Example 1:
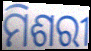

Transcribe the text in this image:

ମିଶରୀ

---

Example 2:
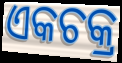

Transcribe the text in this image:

ଏକଚକ୍ର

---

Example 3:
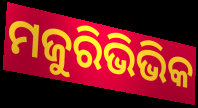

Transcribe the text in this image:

ମଜୁରିଭିଭିକ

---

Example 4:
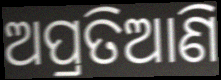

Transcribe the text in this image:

ଅପ୍ରତିଆଣି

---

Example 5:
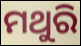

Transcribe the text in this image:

ମଥୁରି